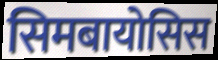
सिमबायोसिस